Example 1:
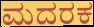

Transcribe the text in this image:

ಮದರಕ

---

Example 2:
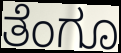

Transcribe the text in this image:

ತೆಂಗೂ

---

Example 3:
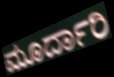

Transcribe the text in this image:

ಮೂರ್ದಾರಿ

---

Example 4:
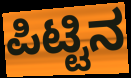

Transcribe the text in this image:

ಪಿಟ್ಟಿನ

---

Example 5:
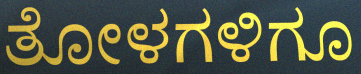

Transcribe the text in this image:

ತೋಳಗಳಿಗೂ